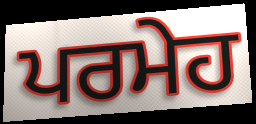
ਪਰਮੇਹ